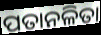
ପତାନଳିତା